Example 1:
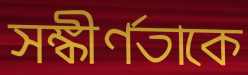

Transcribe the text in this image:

সঙ্কীর্ণতাকে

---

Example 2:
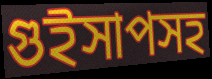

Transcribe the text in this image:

গুইসাপসহ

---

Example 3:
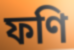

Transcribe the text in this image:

ফণি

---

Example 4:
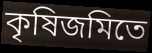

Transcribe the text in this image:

কৃষিজমিতে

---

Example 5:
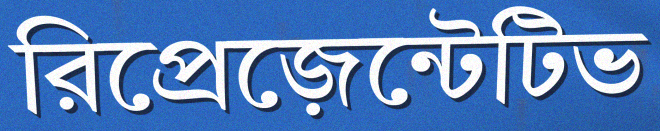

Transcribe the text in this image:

রিপ্রেজ়েন্টেটিভ